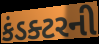
કંડક્ટરની